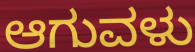
ಆಗುವಳು